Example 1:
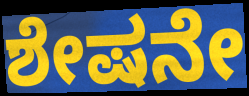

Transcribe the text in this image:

ಶೇಷನೇ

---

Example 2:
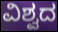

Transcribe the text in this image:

ವಿಶ್ವದ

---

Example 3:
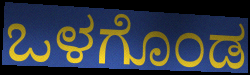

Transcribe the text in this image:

ಒಳಗೊಂಡ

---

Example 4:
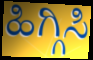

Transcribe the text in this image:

ಹಿಗ್ಗಿಸಿ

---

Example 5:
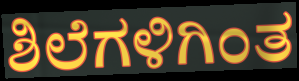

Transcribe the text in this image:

ಶಿಲೆಗಳಿಗಿಂತ